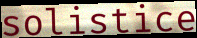
solistice